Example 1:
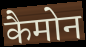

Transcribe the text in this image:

कैमोन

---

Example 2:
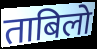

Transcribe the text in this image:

ताबिलो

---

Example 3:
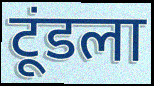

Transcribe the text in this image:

टूंडला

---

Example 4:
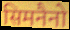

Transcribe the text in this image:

सिमनैनो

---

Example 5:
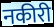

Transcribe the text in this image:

नकीरी